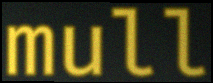
mull